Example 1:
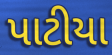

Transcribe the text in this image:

પાટીયા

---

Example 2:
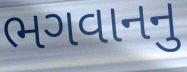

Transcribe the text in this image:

ભગવાનનુ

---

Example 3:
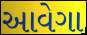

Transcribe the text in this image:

આવેગા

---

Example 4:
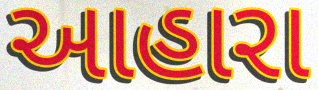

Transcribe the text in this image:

આહારા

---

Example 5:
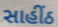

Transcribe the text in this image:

સાહીંઠ